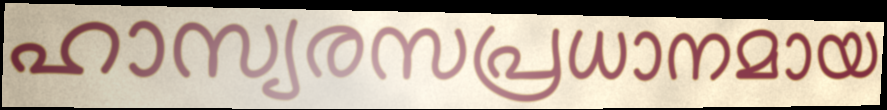
ഹാസ്യരസപ്രധാനമായ